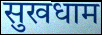
सुखधाम